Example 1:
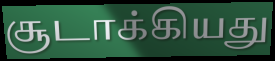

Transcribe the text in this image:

சூடாக்கியது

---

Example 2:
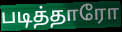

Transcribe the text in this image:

படித்தாரோ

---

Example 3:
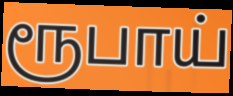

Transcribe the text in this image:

ரூபாய்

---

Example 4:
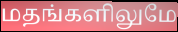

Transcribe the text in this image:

மதங்களிலுமே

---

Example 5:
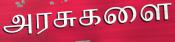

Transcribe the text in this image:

அரசுகளை